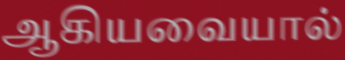
ஆகியவையால்